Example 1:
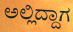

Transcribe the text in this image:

ಅಲ್ಲಿದ್ದಾಗ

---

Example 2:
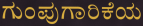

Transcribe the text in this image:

ಗುಂಪುಗಾರಿಕೆಯ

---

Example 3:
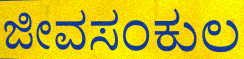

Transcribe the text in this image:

ಜೀವಸಂಕುಲ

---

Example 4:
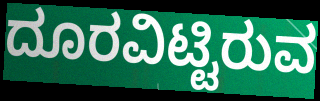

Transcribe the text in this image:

ದೂರವಿಟ್ಟಿರುವ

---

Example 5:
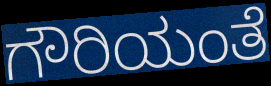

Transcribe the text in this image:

ಗೌರಿಯಂತೆ